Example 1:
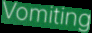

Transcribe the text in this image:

Vomiting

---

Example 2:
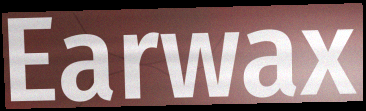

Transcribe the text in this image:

Earwax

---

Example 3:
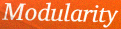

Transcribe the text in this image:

Modularity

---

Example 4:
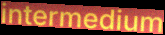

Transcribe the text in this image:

intermedium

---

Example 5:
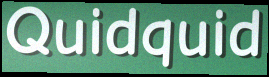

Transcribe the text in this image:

Quidquid